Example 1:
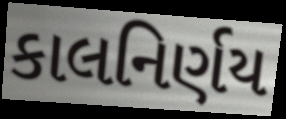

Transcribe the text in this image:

કાલનિર્ણય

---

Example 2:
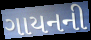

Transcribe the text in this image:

ગાયનની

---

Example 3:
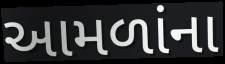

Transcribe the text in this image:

આમળાંના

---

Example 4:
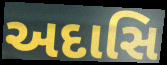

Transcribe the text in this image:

અદાસિ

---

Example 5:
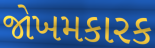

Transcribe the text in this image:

જોખમકારક